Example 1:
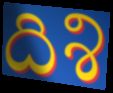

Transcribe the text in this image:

దిశి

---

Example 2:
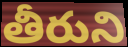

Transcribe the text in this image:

తీరుని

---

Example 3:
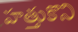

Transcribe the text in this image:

హత్తుకొని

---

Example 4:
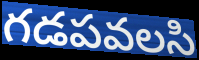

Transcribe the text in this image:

గడపవలసి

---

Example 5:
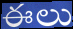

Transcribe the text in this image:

ఈలు